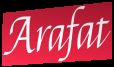
Arafat